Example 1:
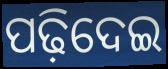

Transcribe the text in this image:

ପଢ଼ିଦେଇ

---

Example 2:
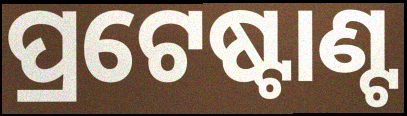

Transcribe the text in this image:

ପ୍ରଟେଷ୍ଟାଣ୍ଟ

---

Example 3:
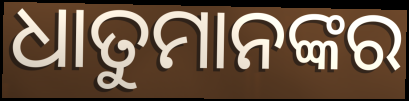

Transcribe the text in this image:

ଧାତୁମାନଙ୍କର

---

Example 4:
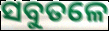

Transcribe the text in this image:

ସବୁତଳେ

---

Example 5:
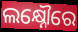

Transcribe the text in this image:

ଲକ୍ଷ୍ନୌରେ